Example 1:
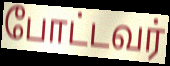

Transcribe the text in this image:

போட்டவர்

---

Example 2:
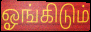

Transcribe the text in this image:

ஓங்கிடும்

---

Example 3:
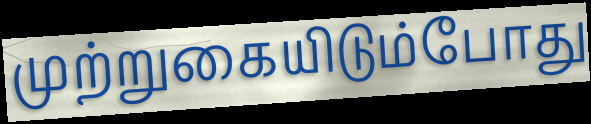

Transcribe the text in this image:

முற்றுகையிடும்போது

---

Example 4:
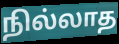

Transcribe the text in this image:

நில்லாத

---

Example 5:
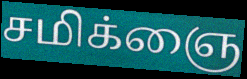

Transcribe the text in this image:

சமிக்ஞை